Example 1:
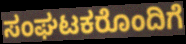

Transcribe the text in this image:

ಸಂಘಟಕರೊಂದಿಗೆ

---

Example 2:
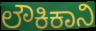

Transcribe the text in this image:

ಲೌಕಿಕಾನಿ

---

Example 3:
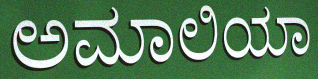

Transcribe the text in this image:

ಅಮಾಲಿಯಾ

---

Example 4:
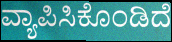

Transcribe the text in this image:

ವ್ಯಾಪಿಸಿಕೊಂಡಿದೆ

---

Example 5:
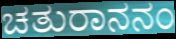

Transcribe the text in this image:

ಚತುರಾನನಂ